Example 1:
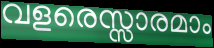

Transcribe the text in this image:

വളരെസ്സാരമാം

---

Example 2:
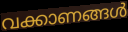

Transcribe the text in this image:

വക്കാണങ്ങൾ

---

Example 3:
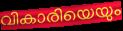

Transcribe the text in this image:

വികാരിയെയും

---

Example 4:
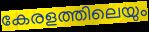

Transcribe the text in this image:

കേരളത്തിലെയും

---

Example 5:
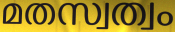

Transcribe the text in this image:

മതസ്വത്വം